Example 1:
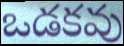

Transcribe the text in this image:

ఒడకవు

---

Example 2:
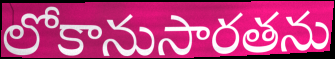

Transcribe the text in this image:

లోకానుసారతను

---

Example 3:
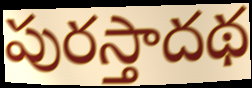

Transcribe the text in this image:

పురస్తాదథ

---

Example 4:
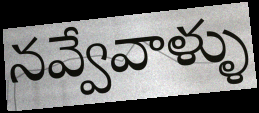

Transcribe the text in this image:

నవ్వేవాళ్ళు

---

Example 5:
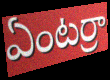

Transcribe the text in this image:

ఏంటర్రా